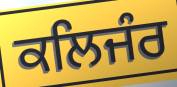
ਕਲਿਜੰਰ